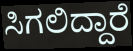
ಸಿಗಲಿದ್ದಾರೆ